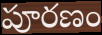
పూరణం